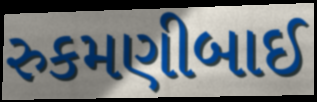
રુકમણીબાઈ